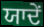
ਯਾਦੇਂ